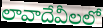
లావాదేవీలలో